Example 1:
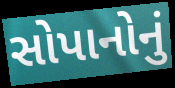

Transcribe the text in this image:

સોપાનોનું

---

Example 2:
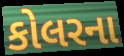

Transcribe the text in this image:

કોલરના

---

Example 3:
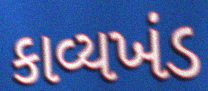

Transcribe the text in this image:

કાવ્યખંડ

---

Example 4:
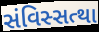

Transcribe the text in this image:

સંવિસ્સત્થા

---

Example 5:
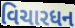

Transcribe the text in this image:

વિચારધન